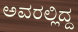
ಅವರಲ್ಲಿದ್ದ